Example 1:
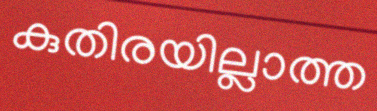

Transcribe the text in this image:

കുതിരയില്ലാത്ത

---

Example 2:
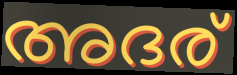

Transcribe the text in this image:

അദര്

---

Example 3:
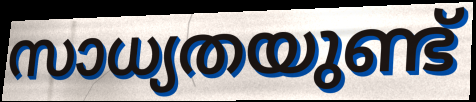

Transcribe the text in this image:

സാധ്യതയുണ്ട്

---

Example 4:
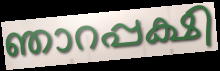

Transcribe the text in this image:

ഞാറപ്പക്ഷി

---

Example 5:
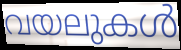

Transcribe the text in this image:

വയലുകൾ